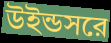
উইন্ডসরে